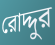
রোদ্দুর